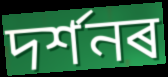
দৰ্শনৰ